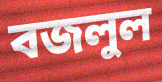
বজলুল